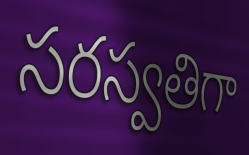
సరస్వతిగా